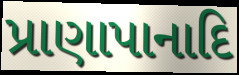
પ્રાણાપાનાદિ